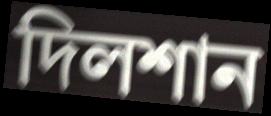
দিলশান